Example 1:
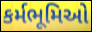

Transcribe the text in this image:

કર્મભૂમિઓ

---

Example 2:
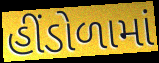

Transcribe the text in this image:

હીંડોળામાં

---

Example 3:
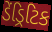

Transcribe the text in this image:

ડેંડ્રિટિક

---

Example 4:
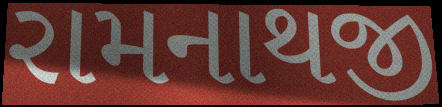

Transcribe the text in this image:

રામનાથજી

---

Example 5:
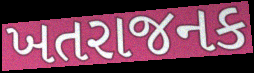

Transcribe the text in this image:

ખતરાજનક